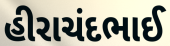
હીરાચંદભાઈ